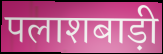
पलाशबाड़ी